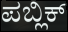
ಪಬ್ಲಿಕ್